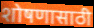
शोषणासाठी